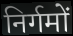
निर्गमों